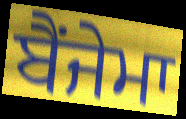
ਬੈਂਜੇਮਾ